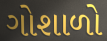
ગોશાળો